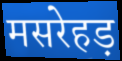
मसरेहड़